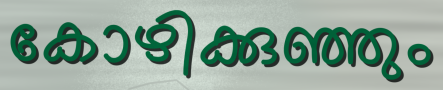
കോഴിക്കുഞ്ഞും